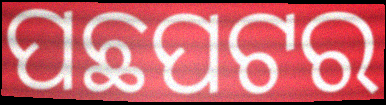
ପଛପଟର